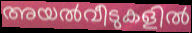
അയൽവീടുകളിൽ